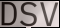
DSV